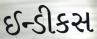
ઈન્ડીકસ